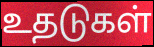
உதடுகள்